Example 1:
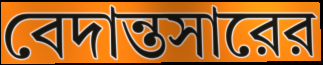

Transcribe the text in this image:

বেদান্তসারের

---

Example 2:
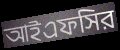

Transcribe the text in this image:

আইএফসির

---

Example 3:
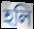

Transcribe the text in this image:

হলি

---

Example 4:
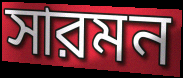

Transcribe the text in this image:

সারমন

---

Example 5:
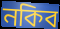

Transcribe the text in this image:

নকিব